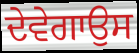
ਦੇਵੇਗਾਉਸ